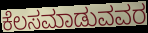
ಕೆಲಸಮಾಡುವವರ